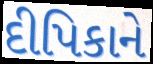
દીપિકાને